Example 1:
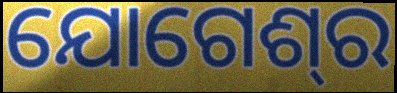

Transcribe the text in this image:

ଯୋଗେଶ୍‍ର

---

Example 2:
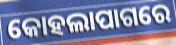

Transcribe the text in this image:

କୋହଲାପାଗରେ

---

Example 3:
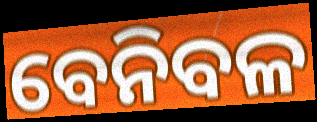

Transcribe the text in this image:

ବେନିବଳ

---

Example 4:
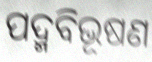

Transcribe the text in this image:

ପଦ୍ମବିଭୂଷଣ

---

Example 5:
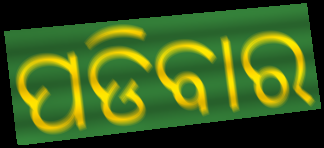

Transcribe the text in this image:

ପଡିବାର